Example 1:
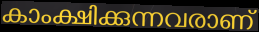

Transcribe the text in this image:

കാംക്ഷിക്കുന്നവരാണ്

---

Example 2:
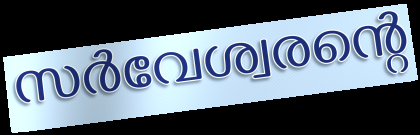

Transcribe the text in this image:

സർവേശ്വരന്റെ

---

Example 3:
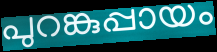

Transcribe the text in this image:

പുറങ്കുപ്പായം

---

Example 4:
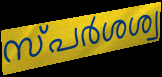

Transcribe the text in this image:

സ്പർശശ്വ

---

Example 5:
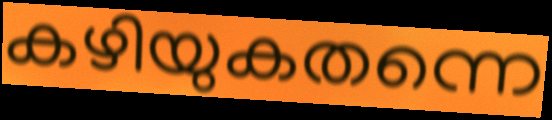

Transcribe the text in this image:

കഴിയുകതന്നെ